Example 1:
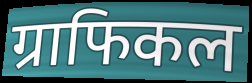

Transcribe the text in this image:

ग्राफिकल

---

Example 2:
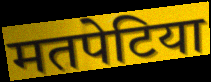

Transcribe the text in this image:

मतपेटिया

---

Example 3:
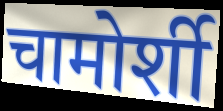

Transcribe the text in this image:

चामोर्शी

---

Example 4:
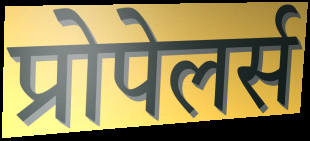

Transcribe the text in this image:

प्रोपेलर्स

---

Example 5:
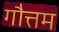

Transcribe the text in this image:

गौत्तम